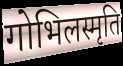
गोभिलस्मृति